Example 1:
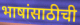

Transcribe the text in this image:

भाषांसाठीची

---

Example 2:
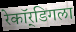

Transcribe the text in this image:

रेकॉर्डिगला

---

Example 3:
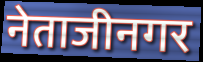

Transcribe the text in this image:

नेताजीनगर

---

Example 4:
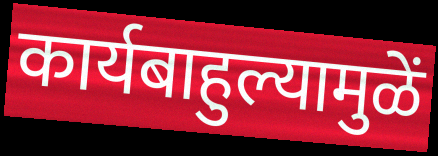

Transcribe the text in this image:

कार्यबाहुल्यामुळें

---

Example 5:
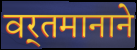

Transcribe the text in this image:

वर्तमानाने